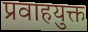
प्रवाहयुक्त